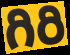
గిరి